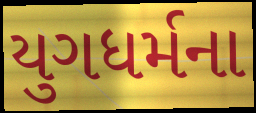
યુગધર્મના